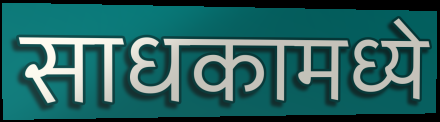
साधकामध्ये